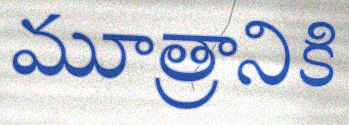
మూత్రానికి